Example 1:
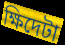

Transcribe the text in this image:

ক্ষিদেটা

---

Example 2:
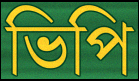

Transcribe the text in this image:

ভিপি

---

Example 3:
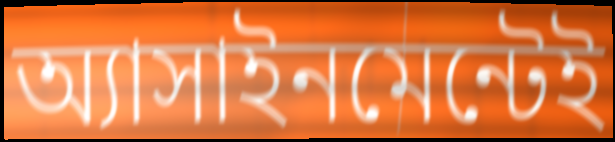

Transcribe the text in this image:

অ্যাসাইনমেন্টেই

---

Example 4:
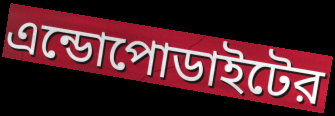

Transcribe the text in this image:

এন্ডোপোডাইটের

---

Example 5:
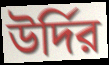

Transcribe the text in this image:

উর্দির